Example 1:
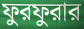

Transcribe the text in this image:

ফুরফুরার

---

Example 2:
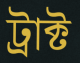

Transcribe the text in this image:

ট্রাক্ট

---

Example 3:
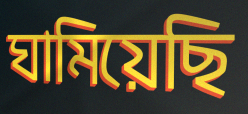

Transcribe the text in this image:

ঘামিয়েছি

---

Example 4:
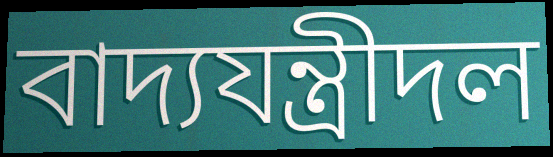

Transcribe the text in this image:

বাদ্যযন্ত্রীদল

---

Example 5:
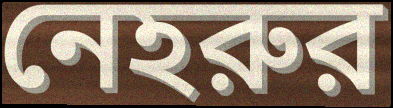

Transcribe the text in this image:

নেহরুর